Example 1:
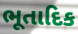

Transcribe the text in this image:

ભૂતાદિક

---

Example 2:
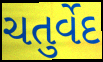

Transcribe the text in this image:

ચતુર્વેદ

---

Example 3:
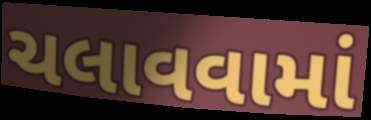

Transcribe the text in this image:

ચલાવવામાં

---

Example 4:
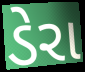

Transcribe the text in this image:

ડેરા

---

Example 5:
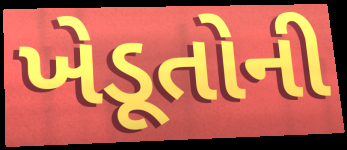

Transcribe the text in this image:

ખેડૂતોની